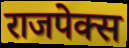
राजपेक्स